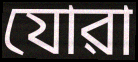
যোৱা